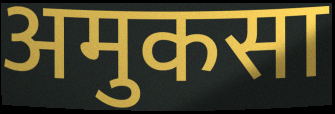
अमुकसा